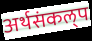
अर्थसंकल्प